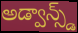
అడ్వాన్స్డ్